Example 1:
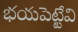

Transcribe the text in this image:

భయపెట్టేవి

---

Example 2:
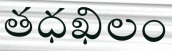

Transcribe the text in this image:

తధఖిలం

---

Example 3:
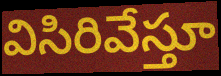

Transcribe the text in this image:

విసిరివేస్తూ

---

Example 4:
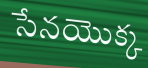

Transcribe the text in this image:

సేనయొక్క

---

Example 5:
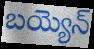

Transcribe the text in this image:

బయ్యెన్